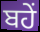
ਬਹੇਂ